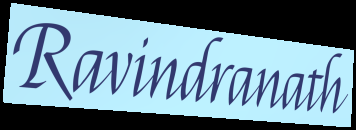
Ravindranath